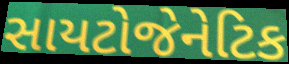
સાયટોજેનેટિક